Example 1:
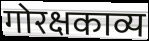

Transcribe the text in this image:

गोरक्षकाव्य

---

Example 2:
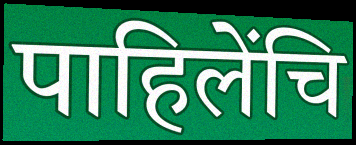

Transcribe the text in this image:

पाहिलेंचि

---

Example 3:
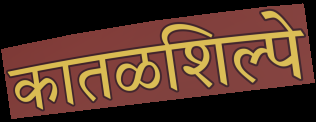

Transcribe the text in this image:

कातळशिल्पे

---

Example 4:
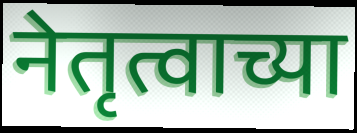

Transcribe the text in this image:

नेतृत्वाच्या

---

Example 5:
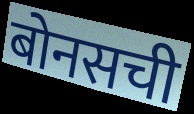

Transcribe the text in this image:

बोनसची